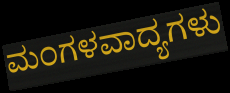
ಮಂಗಳವಾದ್ಯಗಳು